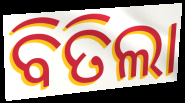
ବିତିଲା